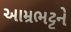
આમ્રભટ્ટને